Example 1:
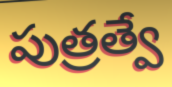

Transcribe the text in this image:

పుత్రత్వే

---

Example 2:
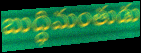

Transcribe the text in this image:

బుద్ధిమంతుడు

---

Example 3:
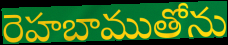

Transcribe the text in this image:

రెహబాముతోను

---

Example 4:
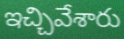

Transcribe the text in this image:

ఇచ్చివేశారు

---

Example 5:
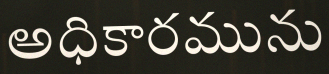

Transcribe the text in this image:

అధికారమును